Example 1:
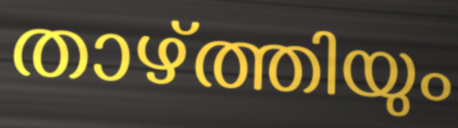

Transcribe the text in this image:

താഴ്ത്തിയും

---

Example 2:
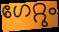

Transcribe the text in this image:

ഗേറ്റും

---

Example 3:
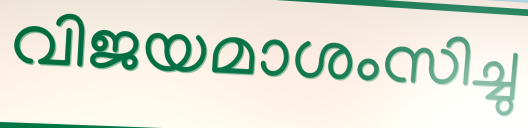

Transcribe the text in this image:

വിജയമാശംസിച്ചു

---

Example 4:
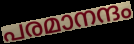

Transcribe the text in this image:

പരമാനന്ദം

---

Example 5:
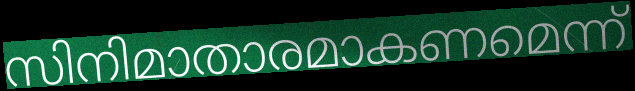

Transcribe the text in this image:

സിനിമാതാരമാകണമെന്ന്